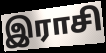
இராசி